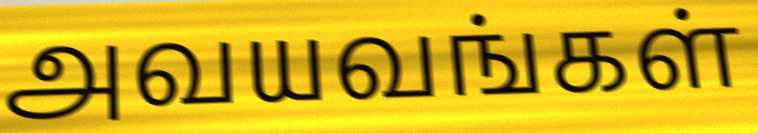
அவயவங்கள்